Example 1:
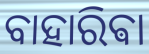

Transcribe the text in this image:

ବାହାରିଵା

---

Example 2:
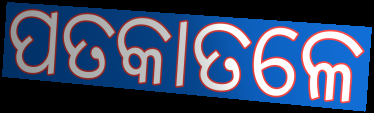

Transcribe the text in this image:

ପତକାତଳେ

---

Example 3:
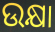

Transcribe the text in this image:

ଉକ୍ଷା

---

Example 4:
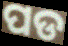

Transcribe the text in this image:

ପଡ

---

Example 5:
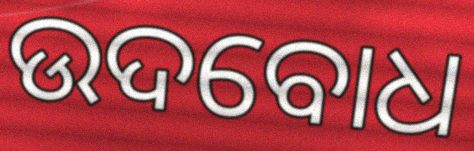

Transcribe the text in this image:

ଉଦବୋଧ